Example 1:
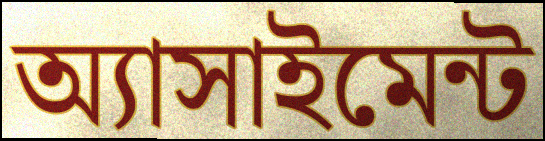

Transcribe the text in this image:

অ্যাসাইমেন্ট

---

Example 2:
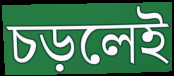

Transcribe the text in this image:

চড়লেই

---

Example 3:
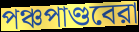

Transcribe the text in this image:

পঞ্চপাণ্ডবেরা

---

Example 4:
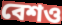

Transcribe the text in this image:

বেশও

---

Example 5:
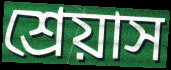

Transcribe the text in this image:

শ্রেয়াস